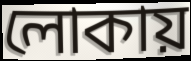
লোকায়